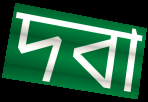
দবা